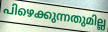
പിഴെക്കുന്നതുമില്ല